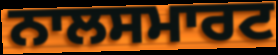
ਨਾਲਸਮਾਰਟ